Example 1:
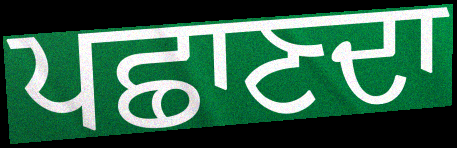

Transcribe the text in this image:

ਪਛਾਣਦਾ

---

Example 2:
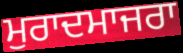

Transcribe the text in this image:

ਮੁਰਾਦਮਾਜਰਾ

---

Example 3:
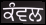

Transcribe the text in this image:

ਕੰਵਲ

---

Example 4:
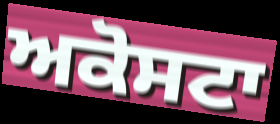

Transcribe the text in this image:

ਅਕੋਸਟਾ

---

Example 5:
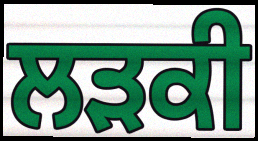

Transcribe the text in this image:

ਲੜਕੀ